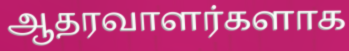
ஆதரவாளர்களாக